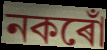
নকৰোঁ